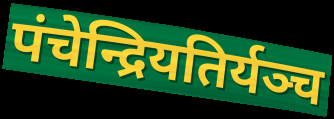
पंचेन्द्रियतिर्यञ्च